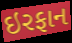
ઇરફાન